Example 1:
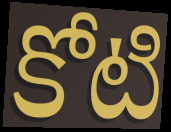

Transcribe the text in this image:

కోటి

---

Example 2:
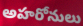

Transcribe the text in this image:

అహరోనులు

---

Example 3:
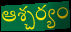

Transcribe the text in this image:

ఆశ్చర్యం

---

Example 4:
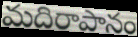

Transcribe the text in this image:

మదిరాపానం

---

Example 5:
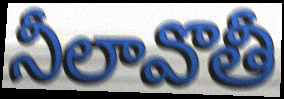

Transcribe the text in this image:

నీలావొతీ